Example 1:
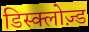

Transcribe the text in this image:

डिस्क्लोज़्ड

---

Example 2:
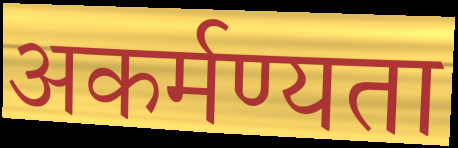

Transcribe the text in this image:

अकर्मण्यता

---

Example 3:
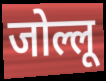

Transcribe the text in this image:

जोल्लू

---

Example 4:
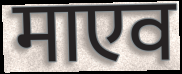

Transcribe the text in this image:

माएव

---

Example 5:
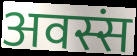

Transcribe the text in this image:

अवस्सं